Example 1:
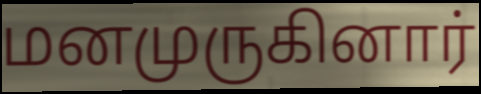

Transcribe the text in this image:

மனமுருகினார்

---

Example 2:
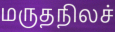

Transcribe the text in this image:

மருதநிலச்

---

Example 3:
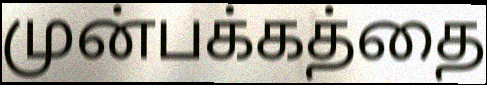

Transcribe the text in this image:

முன்பக்கத்தை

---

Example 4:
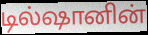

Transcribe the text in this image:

டில்ஷானின்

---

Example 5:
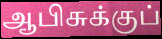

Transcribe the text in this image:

ஆபிசுக்குப்